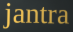
jantra